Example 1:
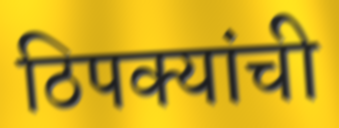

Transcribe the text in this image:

ठिपक्यांची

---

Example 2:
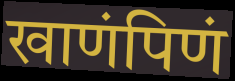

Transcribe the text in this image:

खाणंपिणं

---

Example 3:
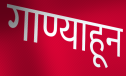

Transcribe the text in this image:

गाण्याहून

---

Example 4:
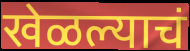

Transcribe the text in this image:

खेळल्याचं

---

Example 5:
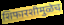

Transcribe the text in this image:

शिफारशीमुळेच